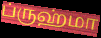
ப்ருஹ்மா